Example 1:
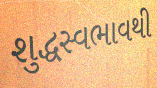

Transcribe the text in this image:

શુદ્ધસ્વભાવથી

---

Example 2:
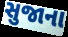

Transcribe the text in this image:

સુજાના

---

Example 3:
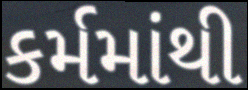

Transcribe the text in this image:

કર્મમાંથી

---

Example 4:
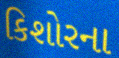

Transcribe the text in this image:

કિશોરના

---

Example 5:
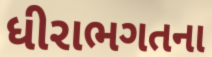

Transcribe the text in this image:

ધીરાભગતના